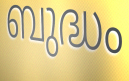
ബുദ്ധം